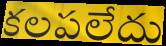
కలపలేదు